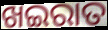
ଖଇରାତ